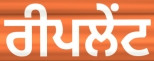
ਰੀਪਲੇਂਟ